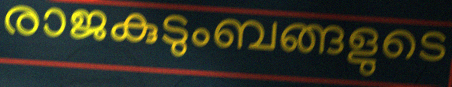
രാജകുടുംബങ്ങളുടെ